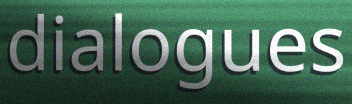
dialogues